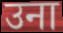
उना